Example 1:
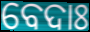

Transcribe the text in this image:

ବେଦାଃ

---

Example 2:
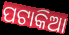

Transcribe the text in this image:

ପଟାକିଆ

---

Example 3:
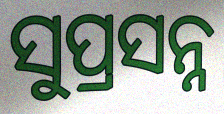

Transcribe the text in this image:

ସୁପ୍ରସନ୍ନ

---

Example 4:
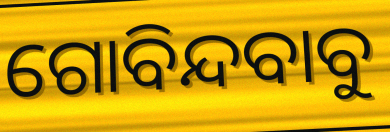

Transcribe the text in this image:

ଗୋବିନ୍ଦବାବୁ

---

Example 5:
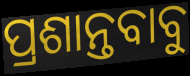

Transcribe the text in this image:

ପ୍ରଶାନ୍ତବାବୁ